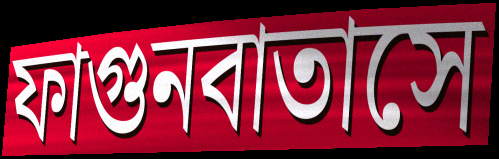
ফাগুনবাতাসে